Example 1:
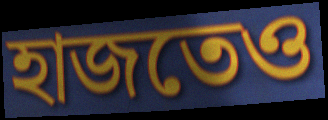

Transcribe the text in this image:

হাজতেও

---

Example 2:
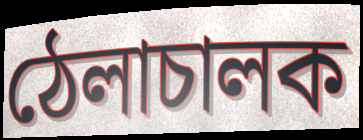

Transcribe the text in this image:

ঠেলাচালক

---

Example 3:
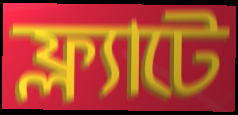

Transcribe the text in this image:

ফ্ল্যাটে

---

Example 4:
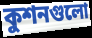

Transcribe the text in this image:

কুশনগুলো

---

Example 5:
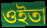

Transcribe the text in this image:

ওইতা